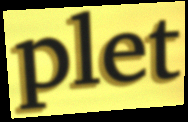
plet